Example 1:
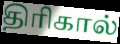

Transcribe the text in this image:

திரிகால்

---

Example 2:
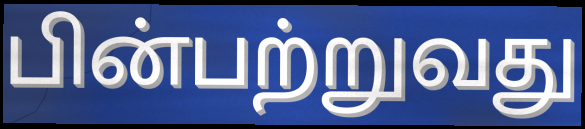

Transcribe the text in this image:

பின்பற்றுவது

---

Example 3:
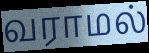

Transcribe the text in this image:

வராமல்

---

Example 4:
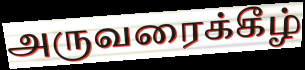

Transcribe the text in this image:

அருவரைக்கீழ்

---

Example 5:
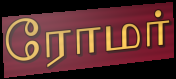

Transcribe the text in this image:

ரோமர்